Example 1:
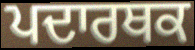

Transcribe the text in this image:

ਪਦਾਰਥਕ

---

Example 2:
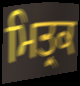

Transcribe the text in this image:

ਮਿਤ੍ਰਕ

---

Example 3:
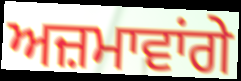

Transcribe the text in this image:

ਅਜ਼ਮਾਵਾਂਗੇ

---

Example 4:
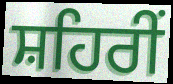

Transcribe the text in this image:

ਸ਼ਹਿਰੀਂ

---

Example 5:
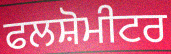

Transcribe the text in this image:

ਫਲਸ਼ੋਮੀਟਰ